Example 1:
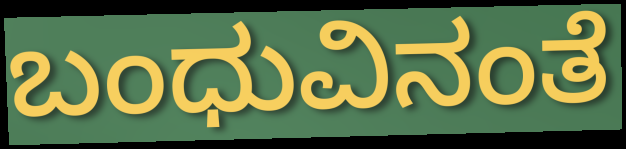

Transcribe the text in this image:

ಬಂಧುವಿನಂತೆ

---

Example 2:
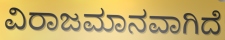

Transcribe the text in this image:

ವಿರಾಜಮಾನವಾಗಿದೆ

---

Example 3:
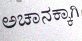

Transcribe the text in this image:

ಅಚಾನಕ್ಕಾಗಿ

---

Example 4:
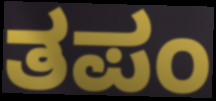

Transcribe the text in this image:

ತಪಂ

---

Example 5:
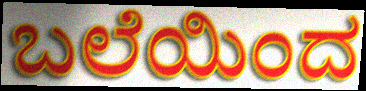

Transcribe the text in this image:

ಬಲೆಯಿಂದ